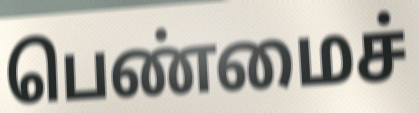
பெண்மைச்